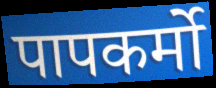
पापकर्मो